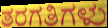
ತರಗತಿಗಳು